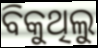
ବିକୁଥିଲୁ